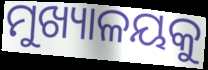
ମୁଖ୍ୟାଳୟକୁ